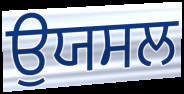
ਉਯਸਲ